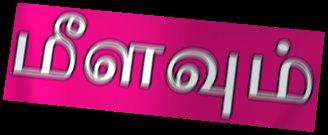
மீளவும்